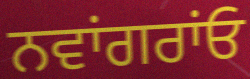
ਨਵਾਂਗਰਾਂਓ